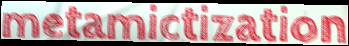
metamictization